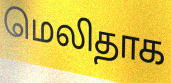
மெலிதாக